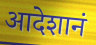
आदेशानं